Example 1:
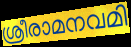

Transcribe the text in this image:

ശ്രീരാമനവമി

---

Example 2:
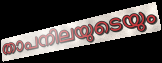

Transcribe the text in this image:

താപനിലയുടെയും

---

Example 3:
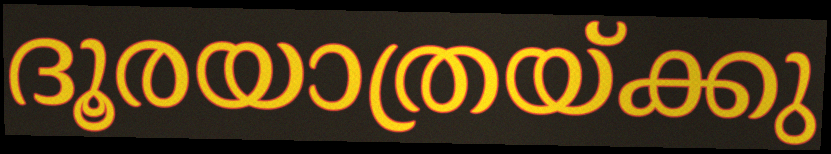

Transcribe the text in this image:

ദൂരയാത്രയ്ക്കു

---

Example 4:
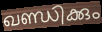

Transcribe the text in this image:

ഖണ്ഡിക്കും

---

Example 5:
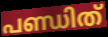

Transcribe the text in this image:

പണ്ഡിത്